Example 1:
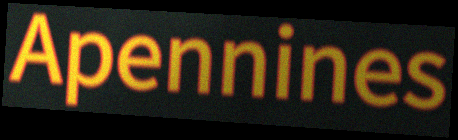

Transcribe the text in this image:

Apennines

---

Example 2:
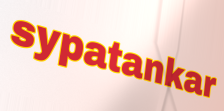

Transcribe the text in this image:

sypatankar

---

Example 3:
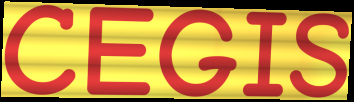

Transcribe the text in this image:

CEGIS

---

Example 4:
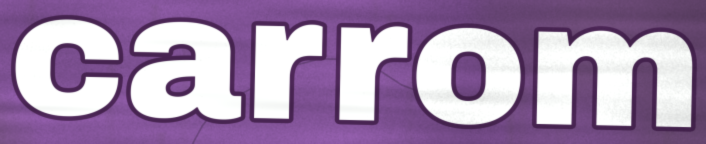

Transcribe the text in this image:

carrom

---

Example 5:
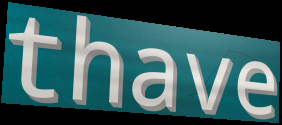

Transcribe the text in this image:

thave